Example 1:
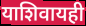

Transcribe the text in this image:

याशिवायही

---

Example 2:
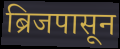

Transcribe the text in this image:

ब्रिजपासून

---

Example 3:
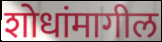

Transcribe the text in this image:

शोधांमागील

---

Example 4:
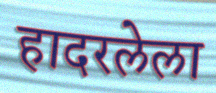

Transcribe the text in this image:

हादरलेला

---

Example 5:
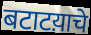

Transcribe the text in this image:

बटाटय़ाचे